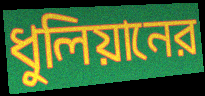
ধুলিয়ানের